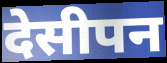
देसीपन